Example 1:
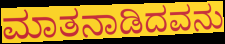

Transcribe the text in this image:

ಮಾತನಾಡಿದವನು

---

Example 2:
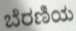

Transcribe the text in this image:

ಬೆರಣಿಯ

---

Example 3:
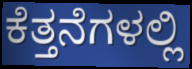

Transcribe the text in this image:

ಕೆತ್ತನೆಗಳಲ್ಲಿ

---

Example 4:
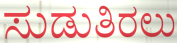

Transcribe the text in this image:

ಸುಡುತಿರಲು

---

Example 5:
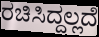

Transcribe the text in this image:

ರಚಿಸಿದ್ದಲ್ಲದೆ